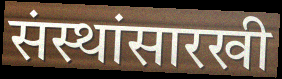
संस्थांसारखी